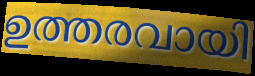
ഉത്തരവായി